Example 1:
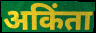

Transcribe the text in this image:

अकिंता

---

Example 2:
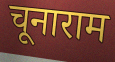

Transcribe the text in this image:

चूनाराम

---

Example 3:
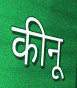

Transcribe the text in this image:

कीनू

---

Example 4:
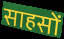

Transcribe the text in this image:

साहसों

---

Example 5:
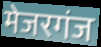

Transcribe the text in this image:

मेजरगंज